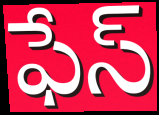
ఫేస్